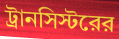
ট্রানসিস্টরের